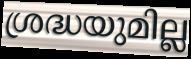
ശ്രദ്ധയുമില്ല